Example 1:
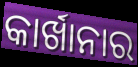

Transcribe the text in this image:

କାର୍ଖାନାର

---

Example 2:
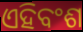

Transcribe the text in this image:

ଏହିବଂଶ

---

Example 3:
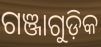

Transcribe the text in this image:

ଗଞ୍ଜାଗୁଡ଼ିକ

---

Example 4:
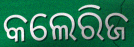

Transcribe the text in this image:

କଲେରିଜ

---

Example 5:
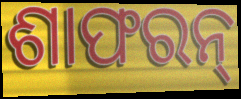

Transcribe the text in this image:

ଶାଫରନ୍